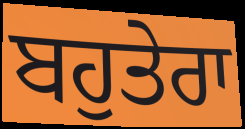
ਬਹੁਤੇਰਾ